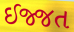
ઈજ્જત